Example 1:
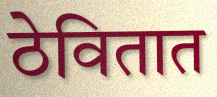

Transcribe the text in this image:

ठेवितात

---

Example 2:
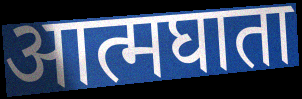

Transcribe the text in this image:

आत्मघाता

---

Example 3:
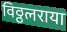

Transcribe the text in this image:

विठ्ठलराया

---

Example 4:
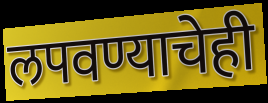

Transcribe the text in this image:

लपवण्याचेही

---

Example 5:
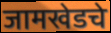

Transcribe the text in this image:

जामखेडचे